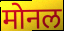
मोनल